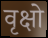
वृक्षो